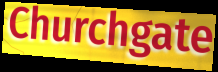
Churchgate